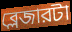
ব্লেজারটা